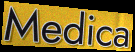
Medica